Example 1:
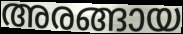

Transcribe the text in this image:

അരങ്ങായ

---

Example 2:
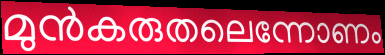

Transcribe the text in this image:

മുൻകരുതലെന്നോണം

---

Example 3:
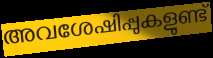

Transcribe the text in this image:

അവശേഷിപ്പുകളുണ്ട്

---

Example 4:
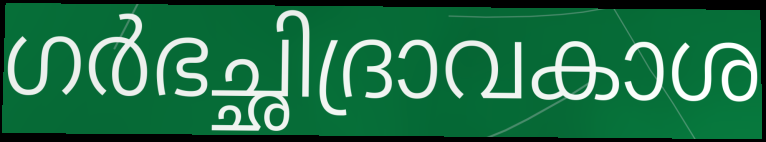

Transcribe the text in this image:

ഗർഭച്ഛിദ്രാവകാശ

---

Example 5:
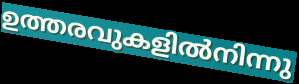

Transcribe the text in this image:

ഉത്തരവുകളിൽനിന്നു